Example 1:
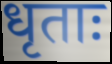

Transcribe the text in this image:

धृताः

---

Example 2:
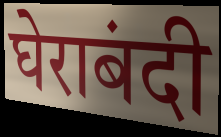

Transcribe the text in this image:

घेराबंदी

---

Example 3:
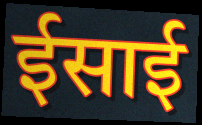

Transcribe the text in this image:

ईसाई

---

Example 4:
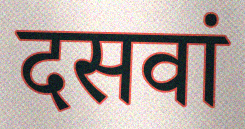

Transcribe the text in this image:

दसवां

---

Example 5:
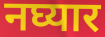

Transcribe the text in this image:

नघ्यार